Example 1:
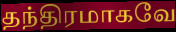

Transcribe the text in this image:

தந்திரமாகவே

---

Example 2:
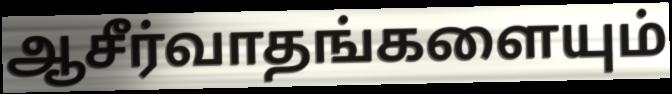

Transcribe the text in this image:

ஆசீர்வாதங்களையும்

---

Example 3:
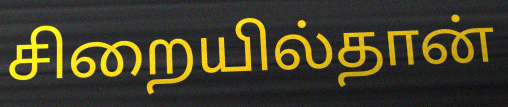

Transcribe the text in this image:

சிறையில்தான்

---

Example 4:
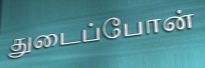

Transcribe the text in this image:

துடைப்போன்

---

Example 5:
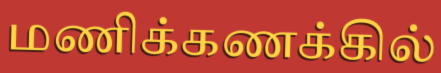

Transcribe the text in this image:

மணிக்கணக்கில்